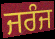
ਜਰੰਜ